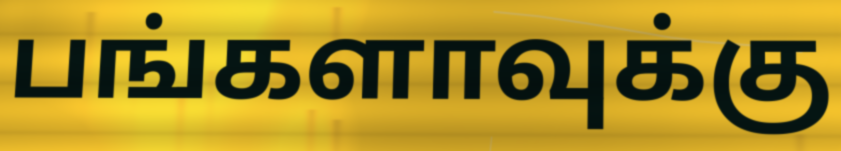
பங்களாவுக்கு